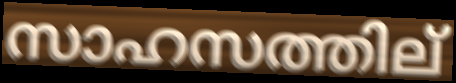
സാഹസത്തില്